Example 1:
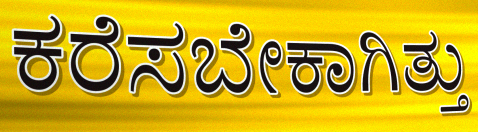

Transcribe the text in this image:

ಕರೆಸಬೇಕಾಗಿತ್ತು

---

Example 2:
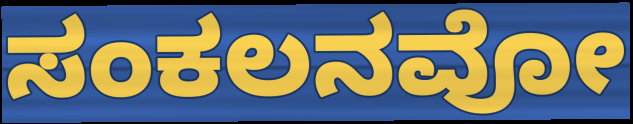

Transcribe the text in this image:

ಸಂಕಲನವೋ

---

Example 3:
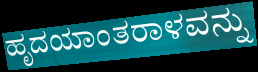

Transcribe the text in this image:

ಹೃದಯಾಂತರಾಳವನ್ನು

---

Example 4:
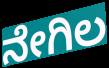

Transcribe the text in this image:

ನೇಗಿಲ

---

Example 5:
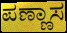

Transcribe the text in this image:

ಪಣ್ಣಾಸ